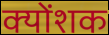
क्योंशक